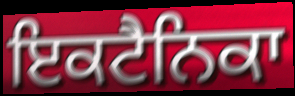
ਇਕਟੈਨਿਕਾ